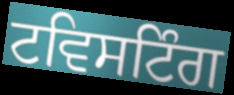
ਟਵਿਸਟਿੰਗ